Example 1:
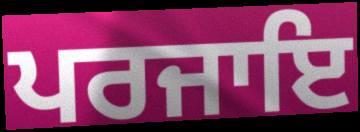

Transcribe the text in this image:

ਪਰਜਾਇ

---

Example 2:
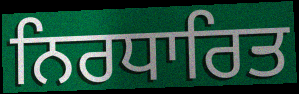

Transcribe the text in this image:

ਨਿਰਧਾਰਿਤ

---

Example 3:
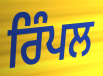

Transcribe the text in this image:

ਰਿੰਪਲ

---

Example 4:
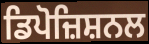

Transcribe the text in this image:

ਡਿਪੋਜ਼ਿਸ਼ਨਲ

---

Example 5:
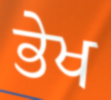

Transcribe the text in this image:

ਭੇਖ